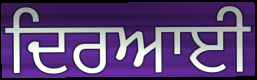
ਦਿਰਆਈ